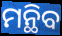
ମନ୍ଥିବ